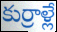
కుర్రాళ్లే